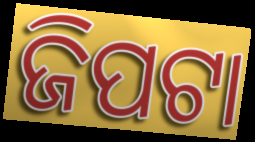
ଜିପଟା